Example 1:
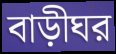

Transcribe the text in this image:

বাড়ীঘর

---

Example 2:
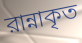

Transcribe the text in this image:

রান্নাকৃত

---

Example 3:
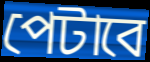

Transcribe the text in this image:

পেটাবে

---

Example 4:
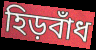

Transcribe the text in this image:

হিড়বাঁধ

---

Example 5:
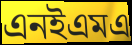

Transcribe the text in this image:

এনইএমএ